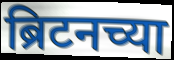
ब्रिटनच्या